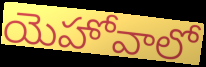
యెహోవాలో